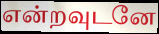
என்றவுடனே